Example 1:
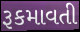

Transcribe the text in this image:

રૂકમાવતી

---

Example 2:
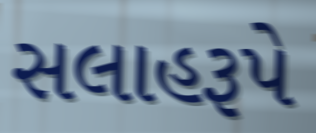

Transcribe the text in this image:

સલાહરૂપે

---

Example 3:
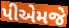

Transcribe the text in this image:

પીએમજે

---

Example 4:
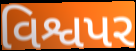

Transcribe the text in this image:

વિશ્વપર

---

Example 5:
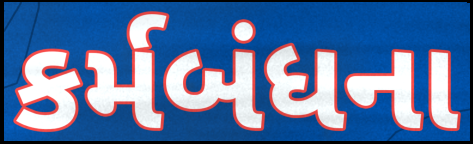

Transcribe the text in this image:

કર્મબંધના